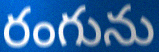
రంగును